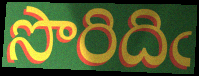
సొరిదిఁ